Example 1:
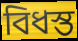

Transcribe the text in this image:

বিধস্ত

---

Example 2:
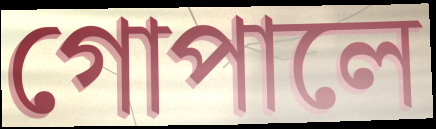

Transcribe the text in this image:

গোপালে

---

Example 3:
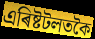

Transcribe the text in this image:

এৰিষ্টটলতকৈ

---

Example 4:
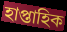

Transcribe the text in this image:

হাপ্তাহিক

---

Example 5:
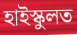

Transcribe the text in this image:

হাইস্কুলত